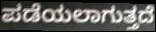
ಪಡೆಯಲಾಗುತ್ತದೆ